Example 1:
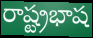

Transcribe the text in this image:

రాష్ట్రభాష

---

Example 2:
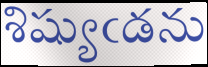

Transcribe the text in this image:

శిష్యుఁడను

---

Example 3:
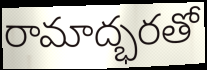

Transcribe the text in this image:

రామాద్భరతో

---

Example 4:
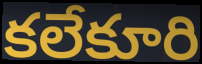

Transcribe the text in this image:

కలేకూరి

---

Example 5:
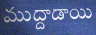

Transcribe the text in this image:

ముద్దాడాయి